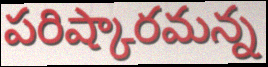
పరిష్కారమన్న